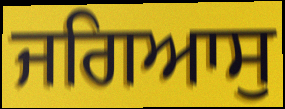
ਜਗਿਆਸੁ